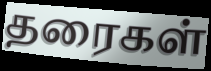
தரைகள்